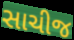
સાચીજ